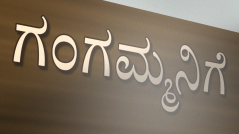
ಗಂಗಮ್ಮನಿಗೆ